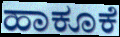
ಹಾಕೂಕೆ